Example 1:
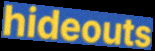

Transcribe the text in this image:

hideouts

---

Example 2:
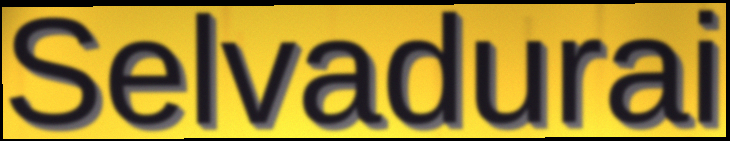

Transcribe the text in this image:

Selvadurai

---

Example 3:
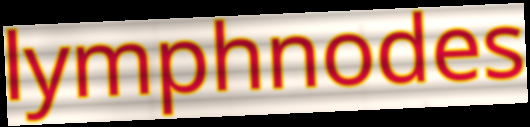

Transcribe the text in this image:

lymphnodes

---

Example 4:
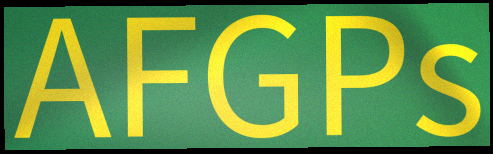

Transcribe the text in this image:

AFGPs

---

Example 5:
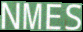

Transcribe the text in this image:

NMES